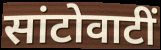
सांटोवाटीं